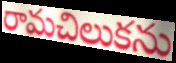
రామచిలుకను